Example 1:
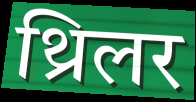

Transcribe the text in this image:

थ्रिलर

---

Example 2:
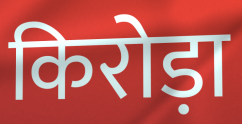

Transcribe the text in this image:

किरोड़ा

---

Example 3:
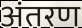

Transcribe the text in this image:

अंतरण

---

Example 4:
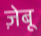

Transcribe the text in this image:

ज़ेबू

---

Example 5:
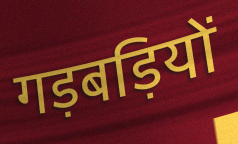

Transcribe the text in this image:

गड़बड़ियों